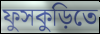
ফুসকুড়িতে